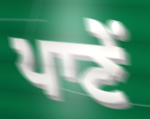
ਪਾਣੇਂ